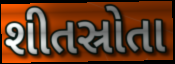
શીતસ્રોતા